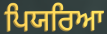
ਪਿਯਰਿਆ